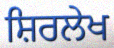
ਸ਼ਿਰਲੇਖ